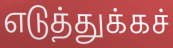
எடுத்துக்கச்